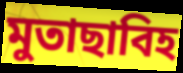
মুতাছাবিহ